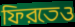
ফিরতেও